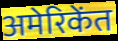
अमेरिकेंत